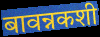
बावन्नकशी